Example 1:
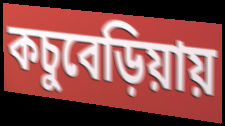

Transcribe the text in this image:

কচুবেড়িয়ায়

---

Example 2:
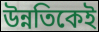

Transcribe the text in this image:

উন্নতিকেই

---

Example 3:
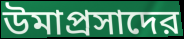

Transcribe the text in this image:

উমাপ্রসাদের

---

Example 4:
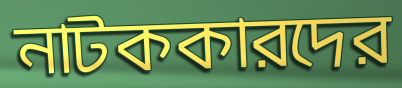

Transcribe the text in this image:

নাটককারদের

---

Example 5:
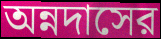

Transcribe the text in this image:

অন্নদাসের